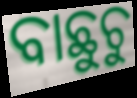
ବାଛୁଚୁ